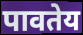
पावतेय